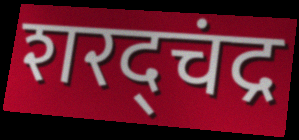
शरद्चंद्र